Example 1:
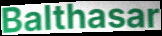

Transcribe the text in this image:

Balthasar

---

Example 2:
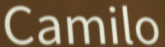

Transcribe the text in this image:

Camilo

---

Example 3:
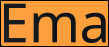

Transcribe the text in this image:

Ema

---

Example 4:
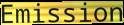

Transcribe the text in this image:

Emission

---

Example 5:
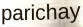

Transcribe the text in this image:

parichay